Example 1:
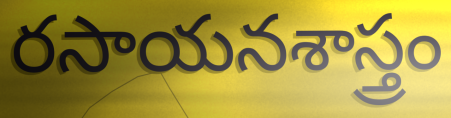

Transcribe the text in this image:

రసాయనశాస్త్రం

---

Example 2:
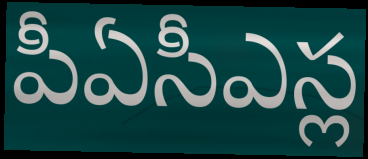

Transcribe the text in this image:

పీఏసీఎస్ల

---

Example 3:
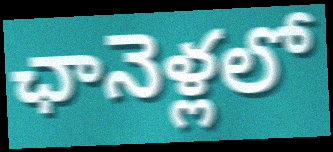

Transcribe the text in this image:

ఛానెళ్లలో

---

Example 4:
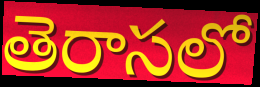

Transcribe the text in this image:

తెరాసలో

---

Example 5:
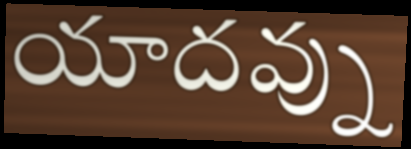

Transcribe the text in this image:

యాదవ్ను